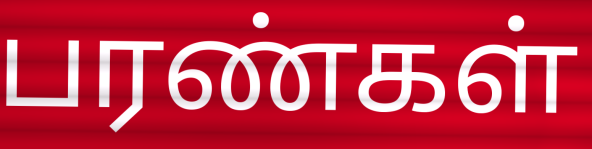
பரண்கள்